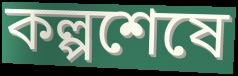
কল্পশেষে